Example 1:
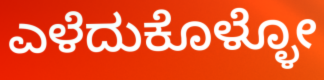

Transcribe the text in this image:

ಎಳೆದುಕೊಳ್ಳೋ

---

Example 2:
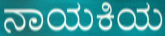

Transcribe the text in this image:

ನಾಯಕಿಯ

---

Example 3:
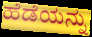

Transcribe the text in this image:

ಹೆಡೆಯನ್ನು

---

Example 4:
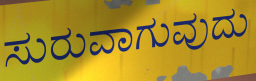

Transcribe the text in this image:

ಸುರುವಾಗುವುದು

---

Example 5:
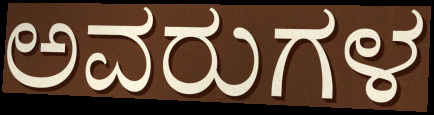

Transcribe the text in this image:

ಅವರುಗಳ